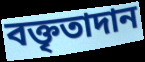
বক্তৃতাদান